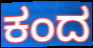
ಕಂದ